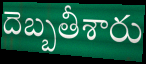
దెబ్బతీశారు